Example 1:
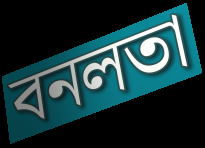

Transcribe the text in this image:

বনলতা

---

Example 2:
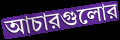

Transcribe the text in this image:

আচারগুলোর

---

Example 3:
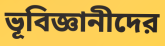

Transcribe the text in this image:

ভূবিজ্ঞানীদের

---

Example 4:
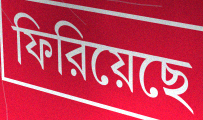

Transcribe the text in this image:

ফিরিয়েছে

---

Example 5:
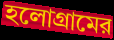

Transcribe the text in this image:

হলোগ্রামের